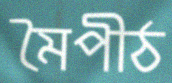
মৈপীঠ